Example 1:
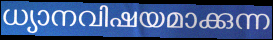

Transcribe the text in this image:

ധ്യാനവിഷയമാക്കുന്ന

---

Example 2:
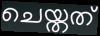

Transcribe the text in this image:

ചെയ്തത്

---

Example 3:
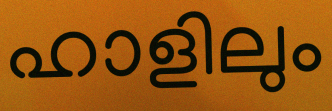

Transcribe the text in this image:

ഹാളിലും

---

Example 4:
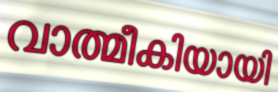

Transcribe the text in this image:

വാത്മീകിയായി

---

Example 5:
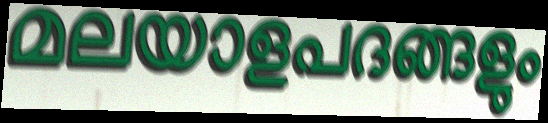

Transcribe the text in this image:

മലയാളപദങ്ങളും